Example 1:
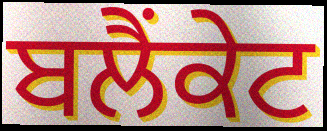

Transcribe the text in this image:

ਬਲੈਂਕੇਟ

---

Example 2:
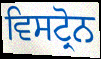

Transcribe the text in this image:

ਵਿਸਟ੍ਰੋਨ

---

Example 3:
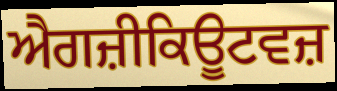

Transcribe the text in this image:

ਐਗਜ਼ੀਕਿਊਟਵਜ਼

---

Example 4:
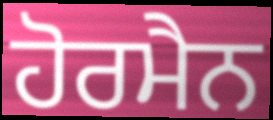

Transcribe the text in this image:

ਹੋਰਮੈਨ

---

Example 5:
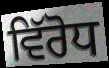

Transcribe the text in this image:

ਵਿੱਰੋਧ